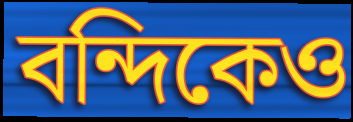
বন্দিকেও